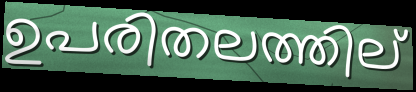
ഉപരിതലത്തില്